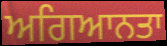
ਅਗਿਆਨਤਾ